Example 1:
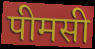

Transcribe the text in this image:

पीमसी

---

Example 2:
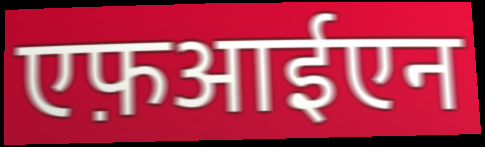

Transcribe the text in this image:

एफ़आईएन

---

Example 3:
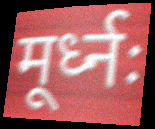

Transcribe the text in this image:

मूर्ध्नः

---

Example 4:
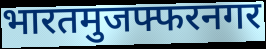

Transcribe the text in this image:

भारतमुजफ्फरनगर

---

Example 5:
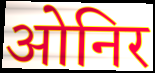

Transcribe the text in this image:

ओनिर